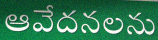
ఆవేదనలను